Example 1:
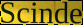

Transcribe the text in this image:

Scinde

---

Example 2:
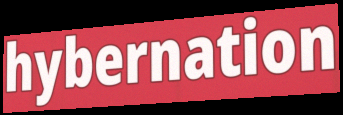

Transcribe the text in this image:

hybernation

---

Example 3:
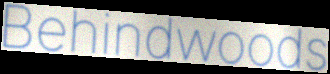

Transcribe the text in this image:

Behindwoods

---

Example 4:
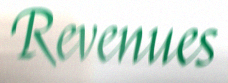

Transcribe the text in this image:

Revenues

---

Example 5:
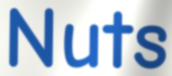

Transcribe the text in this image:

Nuts